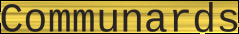
Communards